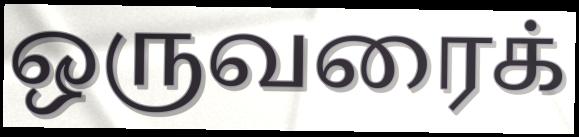
ஒருவரைக்